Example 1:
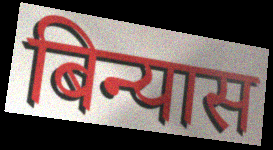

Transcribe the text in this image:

बिन्यास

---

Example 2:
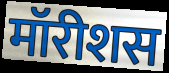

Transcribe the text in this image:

मॉरीशस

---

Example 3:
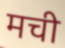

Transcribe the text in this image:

मची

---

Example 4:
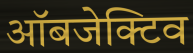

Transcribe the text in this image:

ऑबजेक्टिव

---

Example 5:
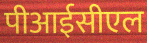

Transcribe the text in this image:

पीआईसीएल